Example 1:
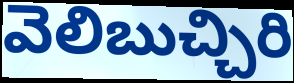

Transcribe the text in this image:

వెలిబుచ్చిరి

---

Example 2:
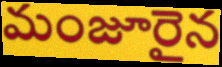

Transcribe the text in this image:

మంజూరైన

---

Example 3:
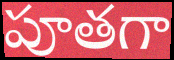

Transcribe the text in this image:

పూతగా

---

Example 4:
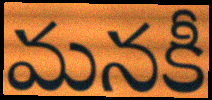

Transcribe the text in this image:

మనకీ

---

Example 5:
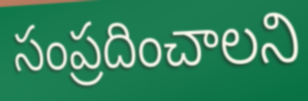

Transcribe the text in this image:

సంప్రదించాలని